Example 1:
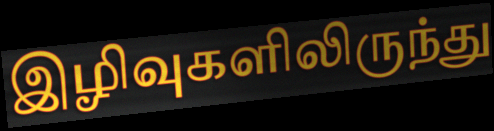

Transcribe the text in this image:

இழிவுகளிலிருந்து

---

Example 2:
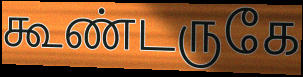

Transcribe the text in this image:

கூண்டருகே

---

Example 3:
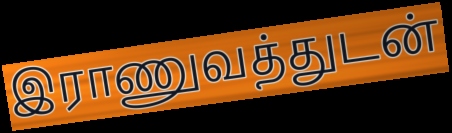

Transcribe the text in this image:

இராணுவத்துடன்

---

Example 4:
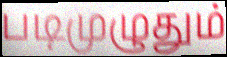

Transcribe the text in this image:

படிமுழுதும்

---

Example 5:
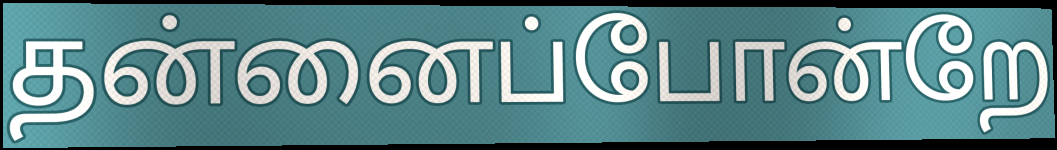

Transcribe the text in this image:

தன்னைப்போன்றே